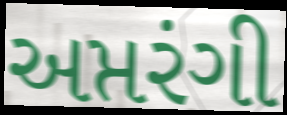
અપ્તરંગી